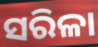
ସରିଳା